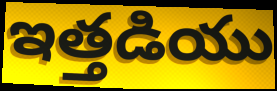
ఇత్తడియు